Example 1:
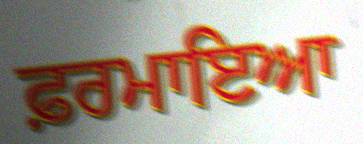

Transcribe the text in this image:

ਫ਼ਰਮਾਇਆ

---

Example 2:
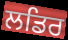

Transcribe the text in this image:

ਲਡਿਰ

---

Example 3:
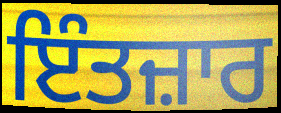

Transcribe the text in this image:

ਇੰਤਜ਼ਾਰ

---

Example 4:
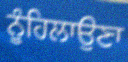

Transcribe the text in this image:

ਨੂੰਹਿਲਾਉਣਾ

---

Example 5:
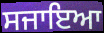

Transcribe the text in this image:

ਸਜਾਇਆ